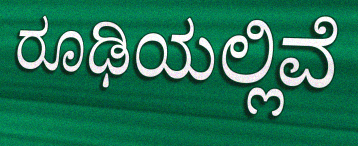
ರೂಢಿಯಲ್ಲಿವೆ